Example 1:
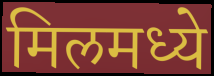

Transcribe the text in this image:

मिलमध्ये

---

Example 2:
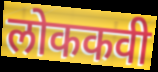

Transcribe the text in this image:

लोककवी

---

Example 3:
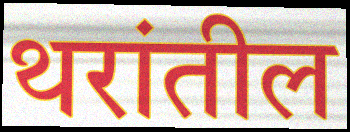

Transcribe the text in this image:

थरांतील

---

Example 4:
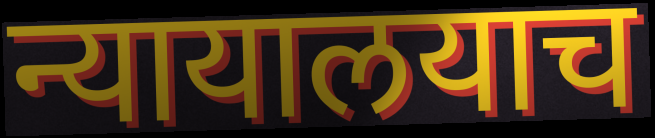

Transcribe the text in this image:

न्यायालयाच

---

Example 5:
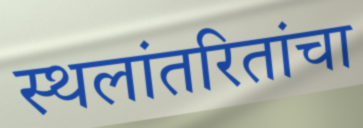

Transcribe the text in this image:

स्थलांतरितांचा